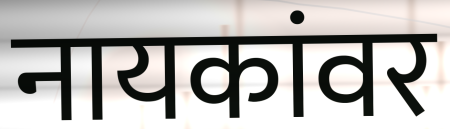
नायकांवर